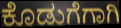
ಕೊಡುಗೆಗಾಗಿ